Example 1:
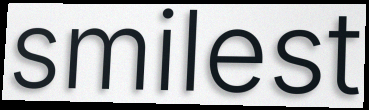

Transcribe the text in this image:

smilest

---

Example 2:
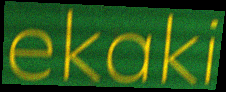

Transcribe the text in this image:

ekaki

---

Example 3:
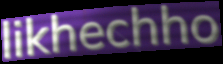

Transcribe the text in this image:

likhechho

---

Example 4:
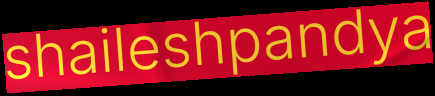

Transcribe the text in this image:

shaileshpandya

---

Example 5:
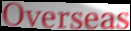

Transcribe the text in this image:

Overseas